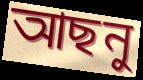
আছনু